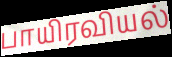
பாயிரவியல்